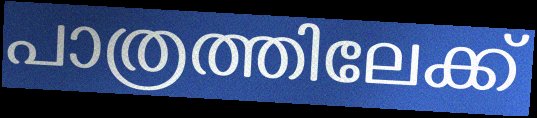
പാത്രത്തിലേക്ക്